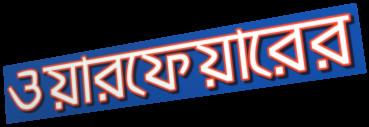
ওয়ারফেয়ারের